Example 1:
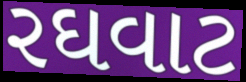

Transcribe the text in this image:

રઘવાટ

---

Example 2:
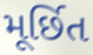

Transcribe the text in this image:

મૂર્છિત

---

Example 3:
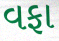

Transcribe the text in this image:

વફા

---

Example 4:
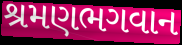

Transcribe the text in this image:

શ્રમણભગવાન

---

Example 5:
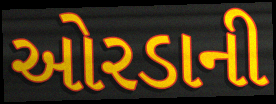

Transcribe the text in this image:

ઓરડાની